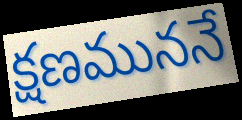
క్షణముననే